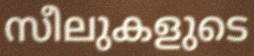
സീലുകളുടെ